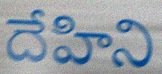
దేహిని